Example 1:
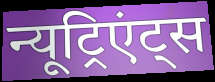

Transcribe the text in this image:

न्यूट्रिएंट्स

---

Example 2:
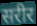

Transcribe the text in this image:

सरीर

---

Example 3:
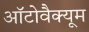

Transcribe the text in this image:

ऑटोवैक्यूम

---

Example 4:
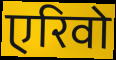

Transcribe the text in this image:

एरिवो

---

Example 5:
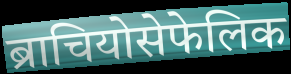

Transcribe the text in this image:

ब्राचियोसेफेलिक